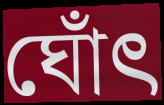
ঘোঁৎ